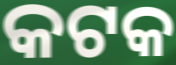
କଟକ